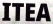
ITEA